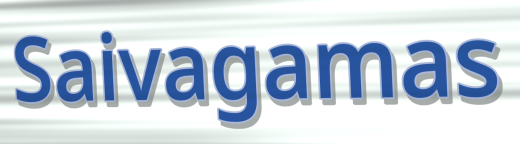
Saivagamas